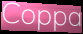
Coppa